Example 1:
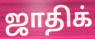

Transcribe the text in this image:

ஜாதிக்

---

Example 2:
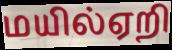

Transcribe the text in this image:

மயில்ஏறி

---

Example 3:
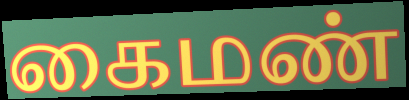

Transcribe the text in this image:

கைமண்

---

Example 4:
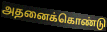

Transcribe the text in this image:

அதனைக்கொண்டு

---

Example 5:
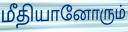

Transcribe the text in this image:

மீதியானோரும்